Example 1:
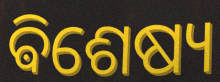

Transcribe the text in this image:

ଵିଶେଷ୍ୟ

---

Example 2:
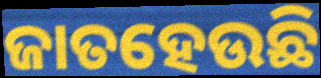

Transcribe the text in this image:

ଜାତହେଉଛି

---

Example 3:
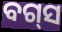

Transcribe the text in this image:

ବଗ୍‌ସ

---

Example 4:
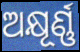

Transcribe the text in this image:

ଅକ୍ଷୂର୍ଣ୍ଣ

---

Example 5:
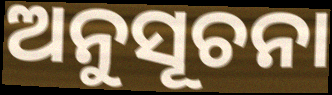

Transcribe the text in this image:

ଅନୁସୂଚନା